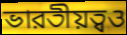
ভারতীয়ত্বও